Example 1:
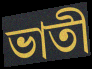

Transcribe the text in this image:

ভাতী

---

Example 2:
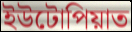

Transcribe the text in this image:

ইউটোপিয়াত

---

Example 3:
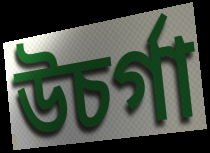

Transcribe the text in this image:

উচৰ্গা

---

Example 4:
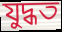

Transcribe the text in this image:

যুদ্ধত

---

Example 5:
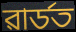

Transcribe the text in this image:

ৱাৰ্ডত